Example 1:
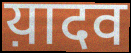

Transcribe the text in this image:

य़ादव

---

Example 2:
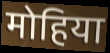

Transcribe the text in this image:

मोहिया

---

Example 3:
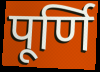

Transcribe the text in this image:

पूर्णि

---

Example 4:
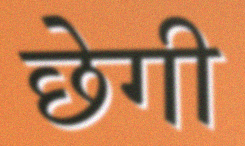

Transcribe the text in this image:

छेगी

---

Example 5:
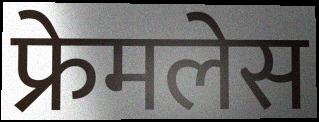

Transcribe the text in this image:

फ्रेमलेस